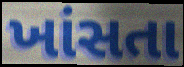
ખાંસતા